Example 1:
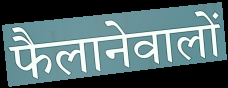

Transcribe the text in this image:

फैलानेवालों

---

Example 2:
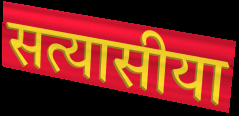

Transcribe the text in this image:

सत्यासीया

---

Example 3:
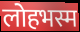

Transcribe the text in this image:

लोहभस्म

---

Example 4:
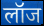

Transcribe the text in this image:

लॉज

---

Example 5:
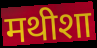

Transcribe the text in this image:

मथीशा